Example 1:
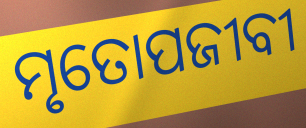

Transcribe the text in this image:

ମୃତୋପଜୀବୀ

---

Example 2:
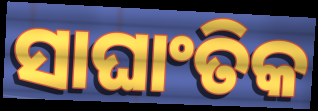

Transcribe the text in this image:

ସାଘାଂତିକ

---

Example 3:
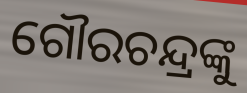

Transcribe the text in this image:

ଗୌରଚନ୍ଦ୍ରଙ୍କୁ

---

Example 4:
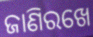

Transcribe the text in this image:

ଜାଣିରଖେ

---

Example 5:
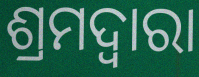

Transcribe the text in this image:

ଶ୍ରମଦ୍ଵାରା